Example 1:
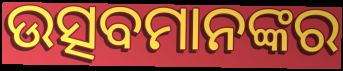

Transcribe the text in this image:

ଉତ୍ସବମାନଙ୍କର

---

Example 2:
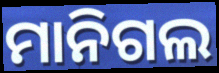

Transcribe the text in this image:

ମାନିଗଲ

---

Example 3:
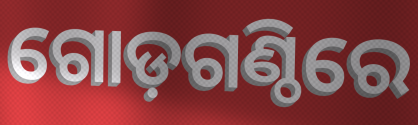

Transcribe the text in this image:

ଗୋଡ଼ଗଣ୍ଠିରେ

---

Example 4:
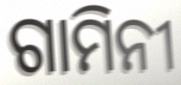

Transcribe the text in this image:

ଗାମିନୀ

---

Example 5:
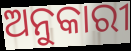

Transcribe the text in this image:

ଅନୁକାରୀ